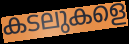
കടലുകളെ